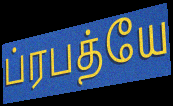
ப்ரபத்யே